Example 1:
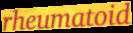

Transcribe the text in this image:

rheumatoid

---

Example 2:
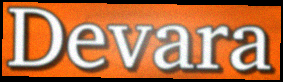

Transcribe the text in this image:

Devara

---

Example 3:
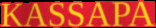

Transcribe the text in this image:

KASSAPA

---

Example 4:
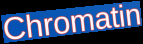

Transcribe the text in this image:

Chromatin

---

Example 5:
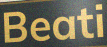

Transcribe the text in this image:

Beati